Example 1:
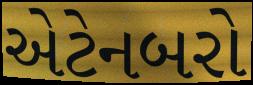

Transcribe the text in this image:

એટેનબરો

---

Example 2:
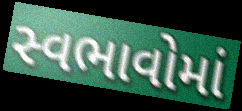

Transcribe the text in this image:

સ્વભાવોમાં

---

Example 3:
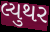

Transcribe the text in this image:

લ્યુથર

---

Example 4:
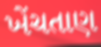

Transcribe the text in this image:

ખેંચતાણ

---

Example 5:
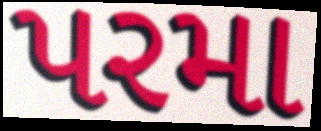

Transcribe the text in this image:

પરમા